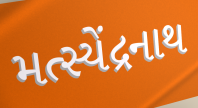
મત્સ્યેંદ્રનાથ